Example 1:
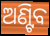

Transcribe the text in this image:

ଅଣ୍ଟିବ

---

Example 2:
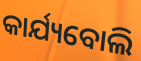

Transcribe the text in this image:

କାର୍ଯ୍ୟବୋଲି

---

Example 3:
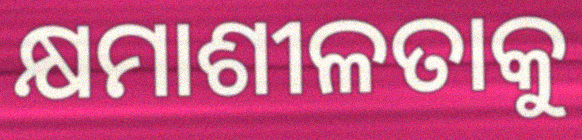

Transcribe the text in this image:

କ୍ଷମାଶୀଳତାକୁ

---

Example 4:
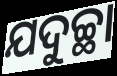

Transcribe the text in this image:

ଯଦୁଚ୍ଛା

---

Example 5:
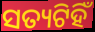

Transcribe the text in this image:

ସତ୍ୟଟିହିଁ